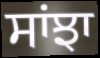
ਸਾਂਝਾ